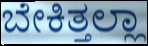
ಬೇಕಿತ್ತಲ್ಲಾ